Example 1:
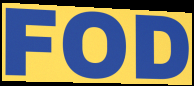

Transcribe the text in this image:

FOD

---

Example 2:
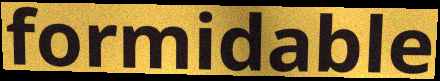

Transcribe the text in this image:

formidable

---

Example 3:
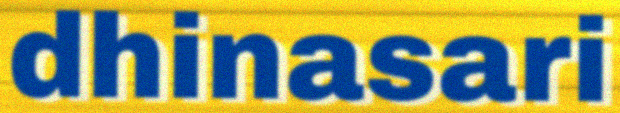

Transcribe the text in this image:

dhinasari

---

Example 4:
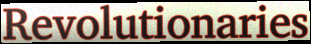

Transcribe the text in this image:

Revolutionaries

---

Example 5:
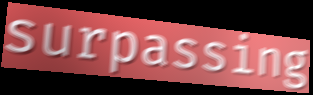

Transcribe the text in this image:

surpassing